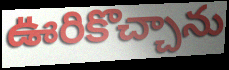
ఊరికొచ్చాను